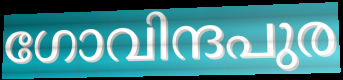
ഗോവിന്ദപുര